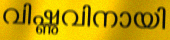
വിഷ്ണുവിനായി